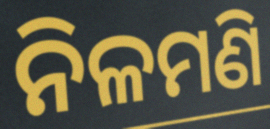
ନିଳମଣି